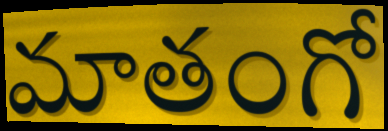
మాతంగో